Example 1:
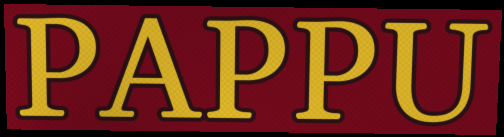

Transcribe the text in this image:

PAPPU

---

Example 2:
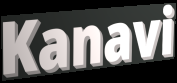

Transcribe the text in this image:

Kanavi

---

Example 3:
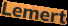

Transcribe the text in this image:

Lemert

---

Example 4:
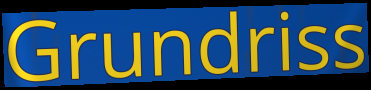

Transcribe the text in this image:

Grundriss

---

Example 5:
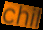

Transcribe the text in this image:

chil